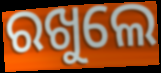
ରଖୁଲେ